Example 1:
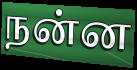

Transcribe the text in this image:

நன்ன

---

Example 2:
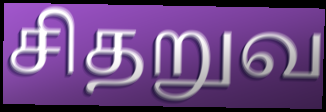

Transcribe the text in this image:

சிதறுவ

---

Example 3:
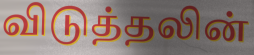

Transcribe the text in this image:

விடுத்தலின்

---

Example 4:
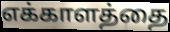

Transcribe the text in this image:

எக்காளத்தை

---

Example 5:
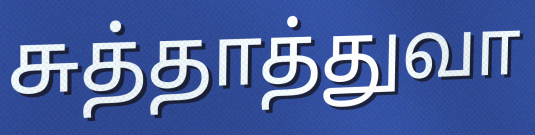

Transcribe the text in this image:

சுத்தாத்துவா